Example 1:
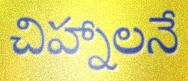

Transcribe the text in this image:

చిహ్నాలనే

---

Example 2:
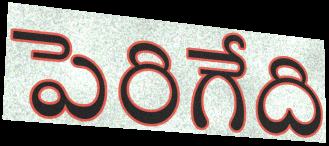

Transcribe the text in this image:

పెరిగేది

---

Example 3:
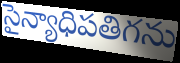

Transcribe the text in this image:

సైన్యాధిపతిగను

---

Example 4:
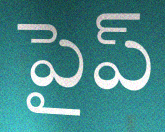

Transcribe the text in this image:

పైప్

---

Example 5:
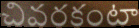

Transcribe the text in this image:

చివరకంటా